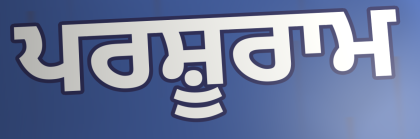
ਪਰਸ਼ੂਰਾਮ